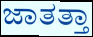
ಜಾತತ್ತಾ